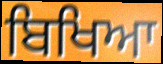
ਬਿਖਿਆ